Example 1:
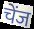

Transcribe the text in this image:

चेंज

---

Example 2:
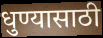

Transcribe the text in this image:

धुण्यासाठी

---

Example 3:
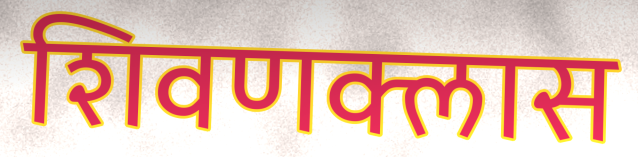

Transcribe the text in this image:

शिवणक्लास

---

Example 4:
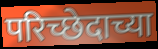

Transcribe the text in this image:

परिच्छेदाच्या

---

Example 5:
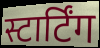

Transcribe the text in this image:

स्टार्टिंग